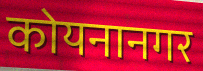
कोयनानगर